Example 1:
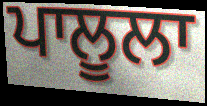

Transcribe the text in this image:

ਪਾਲੂਲਾ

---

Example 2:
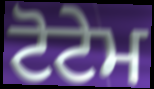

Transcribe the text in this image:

ਟੋਟੇਮ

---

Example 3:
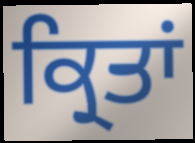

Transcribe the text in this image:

ਕ੍ਰਿਤਾਂ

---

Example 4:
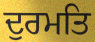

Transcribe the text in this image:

ਦੁਰਮਤਿ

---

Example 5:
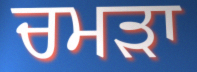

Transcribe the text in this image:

ਚਮੜਾ